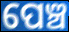
ପେଞ୍ଚ